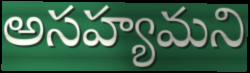
అసహ్యమని